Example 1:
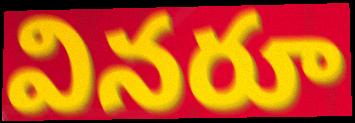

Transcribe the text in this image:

వినరూ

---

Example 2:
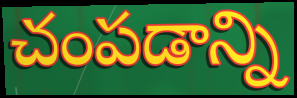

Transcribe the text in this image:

చంపడాన్ని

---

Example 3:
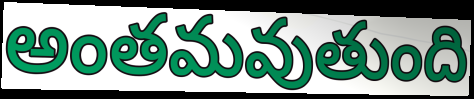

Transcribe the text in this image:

అంతమవుతుంది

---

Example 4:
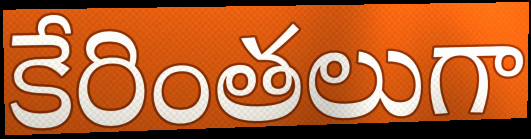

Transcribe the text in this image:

కేరింతలుగా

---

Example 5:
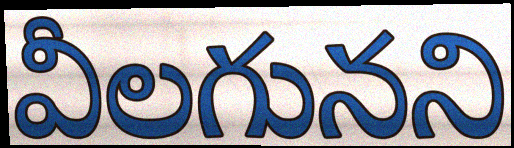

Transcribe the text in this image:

వీలగునని